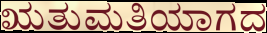
ಋತುಮತಿಯಾಗದ